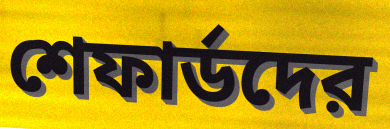
শেফার্ডদের